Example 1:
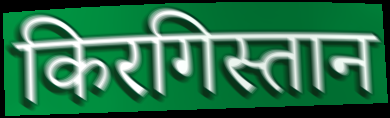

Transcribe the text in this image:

किरगिस्तान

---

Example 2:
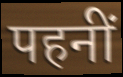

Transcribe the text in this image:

पहनीं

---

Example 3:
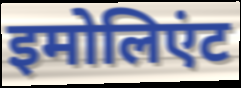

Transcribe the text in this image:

इमोलिएंट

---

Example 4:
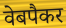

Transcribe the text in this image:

वेबपैकर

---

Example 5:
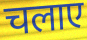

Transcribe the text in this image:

चलाए